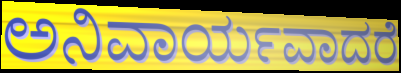
ಅನಿವಾರ್ಯವಾದರೆ